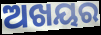
ଅଖୟର